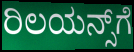
ರಿಲಯನ್ಸ್‌ಗೆ